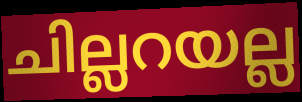
ചില്ലറയല്ല